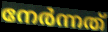
നേർന്നത്